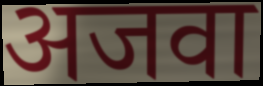
अजवा